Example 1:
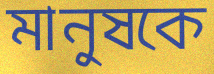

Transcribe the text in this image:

মানুষকে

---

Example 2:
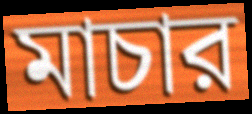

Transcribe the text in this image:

মাচার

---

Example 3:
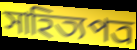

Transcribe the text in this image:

সাহিত্যপত্র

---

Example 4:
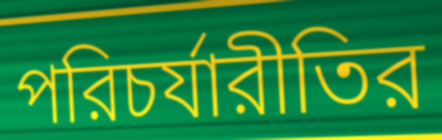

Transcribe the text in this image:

পরিচর্যারীতির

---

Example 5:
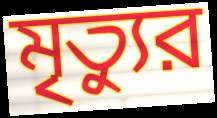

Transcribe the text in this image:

মৃত্যুর